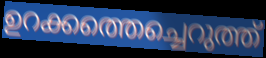
ഉറക്കത്തെച്ചെറുത്ത്